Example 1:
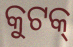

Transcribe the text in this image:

କୁଟକ୍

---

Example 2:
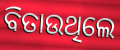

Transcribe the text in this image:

ବିତାଉଥିଲେ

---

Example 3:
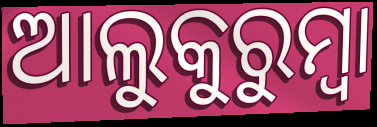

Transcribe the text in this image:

ଆଲୁକୁରୁମ୍ବା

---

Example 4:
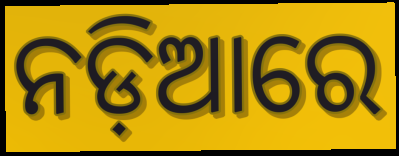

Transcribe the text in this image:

ନଡ଼ିଆରେ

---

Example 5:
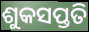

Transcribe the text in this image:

ଶୁକସପ୍ତତି